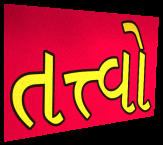
તત્ત્વો